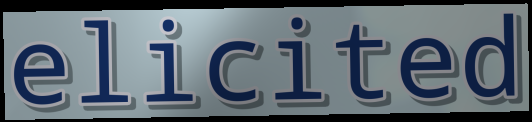
elicited